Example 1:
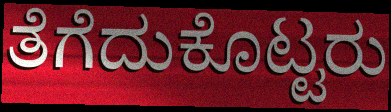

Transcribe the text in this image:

ತೆಗೆದುಕೊಟ್ಟರು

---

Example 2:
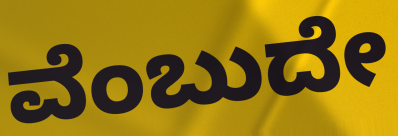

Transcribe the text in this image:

ವೆಂಬುದೇ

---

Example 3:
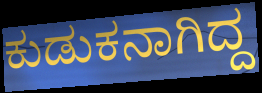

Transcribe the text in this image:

ಕುಡುಕನಾಗಿದ್ದ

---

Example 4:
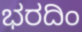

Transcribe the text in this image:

ಭರದಿಂ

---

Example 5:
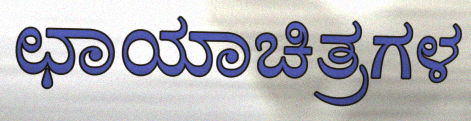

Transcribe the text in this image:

ಛಾಯಾಚಿತ್ರಗಳ